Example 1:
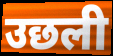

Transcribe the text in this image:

उछली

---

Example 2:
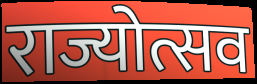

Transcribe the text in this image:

राज्योत्सव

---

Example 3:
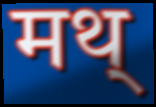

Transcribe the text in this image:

मथ्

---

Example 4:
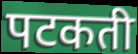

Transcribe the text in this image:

पटकती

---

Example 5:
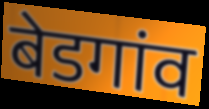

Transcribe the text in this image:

बेडगांव